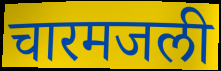
चारमजली